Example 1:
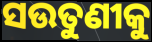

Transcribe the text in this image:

ସଉତୁଣୀକୁ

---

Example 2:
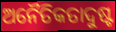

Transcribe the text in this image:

ଅନୈତିକତାଦୁଷ୍ଟ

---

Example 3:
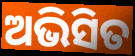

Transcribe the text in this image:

ଅଭିସିତ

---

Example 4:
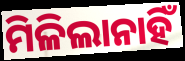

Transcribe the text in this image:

ମିଳିଲାନାହିଁ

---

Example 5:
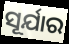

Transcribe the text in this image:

ସୂର୍ଯାର